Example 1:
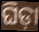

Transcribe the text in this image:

ଘିଡ଼ା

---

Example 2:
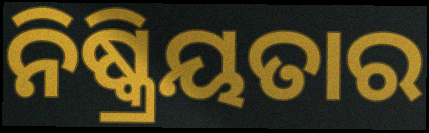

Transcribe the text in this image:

ନିଷ୍କ୍ରିୟତାର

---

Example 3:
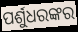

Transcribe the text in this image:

ପର୍ଶୁଧରଙ୍କର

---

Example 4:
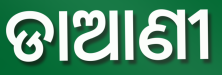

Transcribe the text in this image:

ଡାଆଣୀ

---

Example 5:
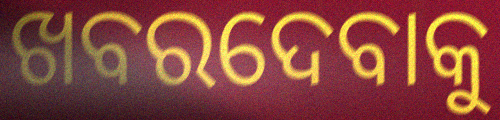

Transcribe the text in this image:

ଖବରଦେବାକୁ